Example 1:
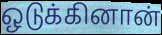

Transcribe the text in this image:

ஒடுக்கினான்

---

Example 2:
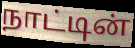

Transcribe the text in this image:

நாட்டின்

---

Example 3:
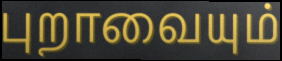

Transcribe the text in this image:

புறாவையும்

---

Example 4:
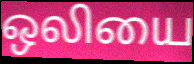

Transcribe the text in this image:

ஒலியை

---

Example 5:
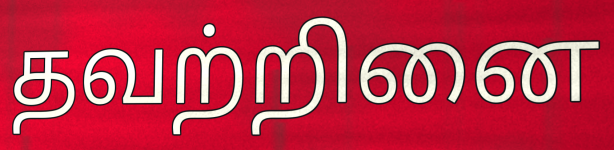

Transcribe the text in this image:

தவற்றினை